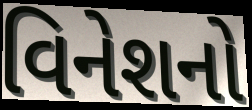
વિનેશનો